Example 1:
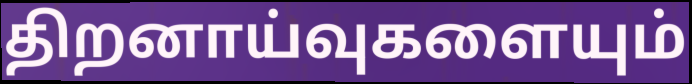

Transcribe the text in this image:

திறனாய்வுகளையும்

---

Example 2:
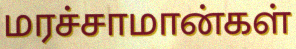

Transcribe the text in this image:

மரச்சாமான்கள்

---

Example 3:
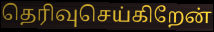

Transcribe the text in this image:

தெரிவுசெய்கிறேன்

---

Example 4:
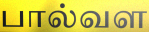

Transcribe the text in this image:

பால்வள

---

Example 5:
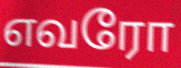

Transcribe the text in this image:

எவரோ